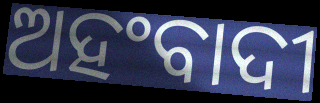
ଅହଂବାଦୀ